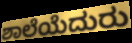
ಶಾಲೆಯೆದುರು